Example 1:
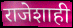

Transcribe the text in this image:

राजेशाही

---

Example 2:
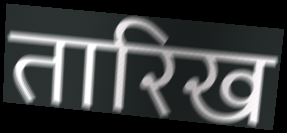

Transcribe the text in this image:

तारिख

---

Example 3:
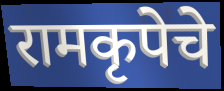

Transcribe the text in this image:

रामकृपेचे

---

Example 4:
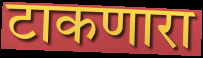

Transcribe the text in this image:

टाकणारा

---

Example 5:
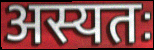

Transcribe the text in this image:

अस्यतः